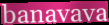
banavava